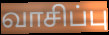
வாசிப்பு